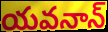
యవనాన్